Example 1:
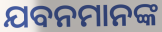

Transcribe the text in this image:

ଯବନମାନଙ୍କ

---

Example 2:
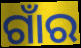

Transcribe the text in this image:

ଗାଁର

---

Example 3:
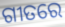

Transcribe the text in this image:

ଗୀତରେ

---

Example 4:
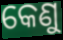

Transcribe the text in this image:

କେଣୁ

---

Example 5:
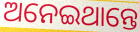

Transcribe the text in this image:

ଅନେଇଥାନ୍ତେ